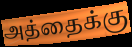
அத்தைக்கு